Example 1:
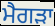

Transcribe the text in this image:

ਮੈਗੜਾ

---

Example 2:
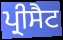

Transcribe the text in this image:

ਪ੍ਰੀਸੈਟ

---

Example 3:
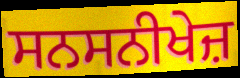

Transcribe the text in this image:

ਸਨਸਨੀਖੇਜ਼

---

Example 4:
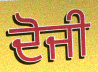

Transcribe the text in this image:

ਦੋਜੀ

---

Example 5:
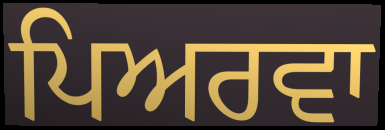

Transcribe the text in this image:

ਪਿਅਰਵਾ